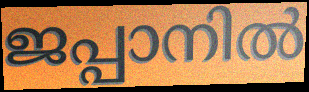
ജപ്പാനിൽ